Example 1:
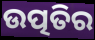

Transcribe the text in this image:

ଉତ୍ପତିର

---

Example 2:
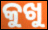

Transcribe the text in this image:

କୁଖୁ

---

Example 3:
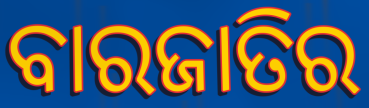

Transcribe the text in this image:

ବାରଜାତିର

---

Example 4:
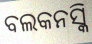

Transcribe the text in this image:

ବଲକନସ୍କି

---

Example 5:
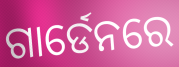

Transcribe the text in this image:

ଗାର୍ଡେନରେ